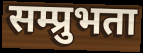
सम्प्रुभता